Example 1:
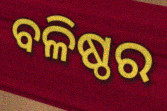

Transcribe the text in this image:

ବଳିଷ୍ଠର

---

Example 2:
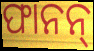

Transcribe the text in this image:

ଫାନନ୍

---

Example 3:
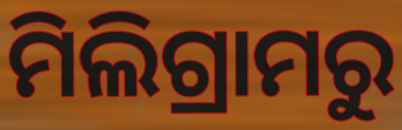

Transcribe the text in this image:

ମିଲିଗ୍ରାମରୁ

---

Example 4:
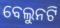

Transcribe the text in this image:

ବେଲୁନଟି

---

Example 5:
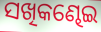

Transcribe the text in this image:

ସଖିକଣ୍ଢେଇ